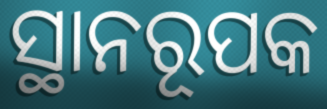
ସ୍ଥାନରୂପକ